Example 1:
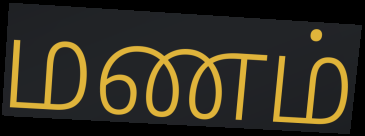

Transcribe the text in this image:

மணம்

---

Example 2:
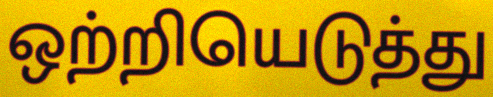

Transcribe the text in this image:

ஒற்றியெடுத்து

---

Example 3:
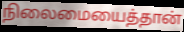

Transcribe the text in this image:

நிலைமையைத்தான்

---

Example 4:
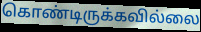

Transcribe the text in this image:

கொண்டிருக்கவில்லை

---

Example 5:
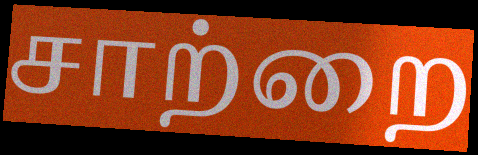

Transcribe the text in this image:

சாற்றை